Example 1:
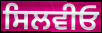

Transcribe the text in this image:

ਸਿਲਵੀਓ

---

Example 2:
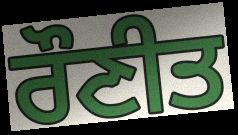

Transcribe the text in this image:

ਰੌਣੀਤ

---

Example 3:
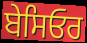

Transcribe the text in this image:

ਬੇਸਿਓਰ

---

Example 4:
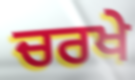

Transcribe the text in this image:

ਚਰਖੇ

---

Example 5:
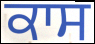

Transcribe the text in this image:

ਕਾਸ